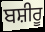
ਬਸ਼ੀਰੂ